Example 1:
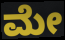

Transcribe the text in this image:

ಮೇ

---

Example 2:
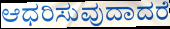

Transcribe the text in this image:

ಆಧರಿಸುವುದಾದರೆ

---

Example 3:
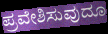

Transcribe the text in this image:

ಪ್ರವೇಶಿಸುವುದೂ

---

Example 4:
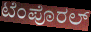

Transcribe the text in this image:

ಟೆಂಪೊರಲ್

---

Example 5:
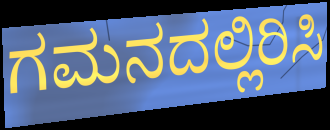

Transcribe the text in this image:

ಗಮನದಲ್ಲಿರಿಸಿ